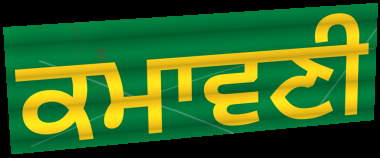
ਕਮਾਵਣੀ